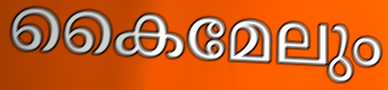
കൈമേലും